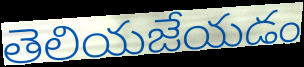
తెలియజేయడం